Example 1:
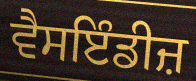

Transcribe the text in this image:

ਵੈਸਇੰਡੀਜ਼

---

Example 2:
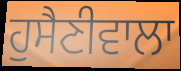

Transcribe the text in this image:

ਹੁਸੈਣੀਵਾਲਾ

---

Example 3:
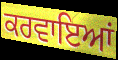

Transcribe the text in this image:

ਕਰਵਾਇਆਂ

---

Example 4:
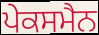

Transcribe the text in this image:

ਪੇਕਸਮੈਨ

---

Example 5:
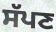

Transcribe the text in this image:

ਸੱਪਣ